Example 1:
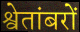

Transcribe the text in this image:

श्वेतांबरों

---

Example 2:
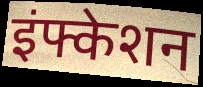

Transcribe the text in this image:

इंफ्केशन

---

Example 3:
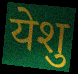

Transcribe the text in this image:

येशु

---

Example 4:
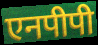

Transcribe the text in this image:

एनपीपी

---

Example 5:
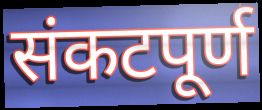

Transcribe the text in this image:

संकटपूर्ण